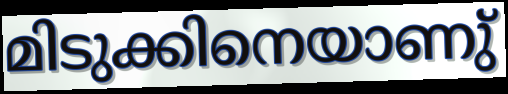
മിടുക്കിനെയാണു്